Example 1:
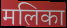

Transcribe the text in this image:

मलिका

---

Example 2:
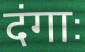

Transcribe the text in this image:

दंगाः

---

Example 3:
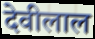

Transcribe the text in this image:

देवीलाल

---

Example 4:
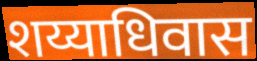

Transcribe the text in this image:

शय्याधिवास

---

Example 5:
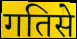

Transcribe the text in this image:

गतिसे